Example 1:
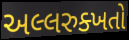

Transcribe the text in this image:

અલ્લરુક્ખતો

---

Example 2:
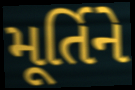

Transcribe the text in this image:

મૂર્તિને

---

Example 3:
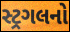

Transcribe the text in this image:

સ્ટ્રગલનો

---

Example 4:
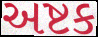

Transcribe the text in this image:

અષ્ટક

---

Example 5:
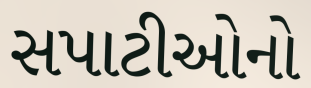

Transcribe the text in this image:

સપાટીઓનો